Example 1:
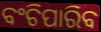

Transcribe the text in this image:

ବଂଚିପାରିବ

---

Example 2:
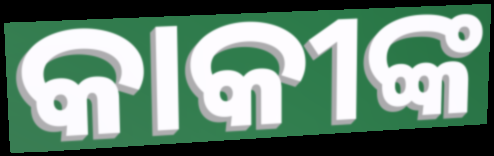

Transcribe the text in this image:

କାକୀଙ୍କ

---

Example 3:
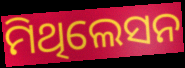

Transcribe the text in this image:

ମିଥିଲେସନ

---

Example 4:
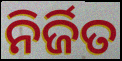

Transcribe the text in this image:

ନିର୍ଜିତ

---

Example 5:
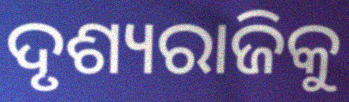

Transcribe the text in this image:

ଦୃଶ୍ୟରାଜିକୁ